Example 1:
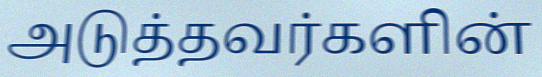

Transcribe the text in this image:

அடுத்தவர்களின்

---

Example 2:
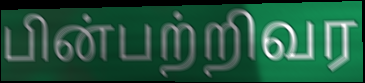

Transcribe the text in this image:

பின்பற்றிவர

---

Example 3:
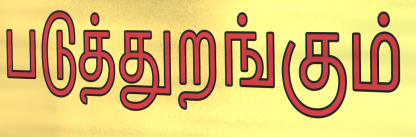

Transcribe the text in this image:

படுத்துறங்கும்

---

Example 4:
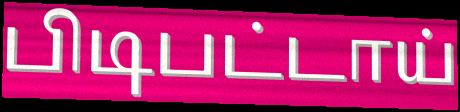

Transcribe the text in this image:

பிடிபட்டாய்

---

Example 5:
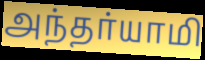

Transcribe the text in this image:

அந்தர்யாமி